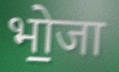
भो॒जा